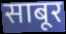
साबूर